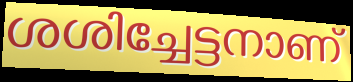
ശശിച്ചേട്ടനാണ്